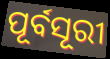
ପୂର୍ବସୂରୀ